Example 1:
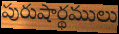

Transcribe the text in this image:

పురుషార్థములు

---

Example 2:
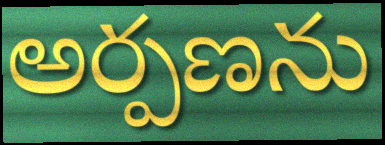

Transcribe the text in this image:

అర్పణను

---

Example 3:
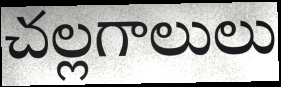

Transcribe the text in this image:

చల్లగాలులు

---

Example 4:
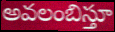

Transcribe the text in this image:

అవలంబిస్తూ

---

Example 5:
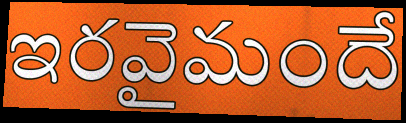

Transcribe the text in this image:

ఇరవైమందే